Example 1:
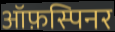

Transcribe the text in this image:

ऑफ़स्पिनर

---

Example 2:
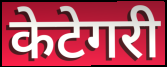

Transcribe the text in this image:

केटेगरी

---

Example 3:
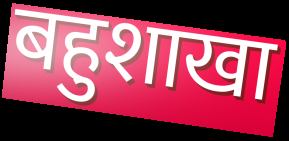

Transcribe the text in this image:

बहुशाखा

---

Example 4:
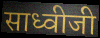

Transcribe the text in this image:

साध्वीजी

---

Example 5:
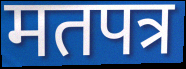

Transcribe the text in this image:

मतपत्र